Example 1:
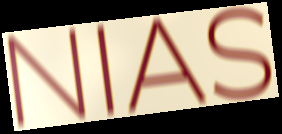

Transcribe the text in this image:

NIAS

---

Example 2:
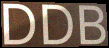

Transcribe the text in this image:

DDB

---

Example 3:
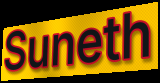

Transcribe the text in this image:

Suneth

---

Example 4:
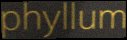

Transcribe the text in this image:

phyllum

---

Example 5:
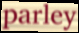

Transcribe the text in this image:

parley